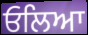
ਓਲਿਆ